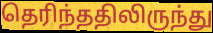
தெரிந்ததிலிருந்து